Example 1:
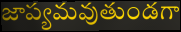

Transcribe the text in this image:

జాప్యమవుతుండగా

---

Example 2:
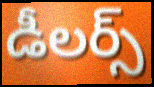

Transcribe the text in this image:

డీలర్స్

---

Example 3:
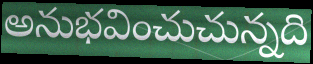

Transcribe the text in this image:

అనుభవించుచున్నది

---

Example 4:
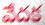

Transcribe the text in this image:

వేదక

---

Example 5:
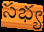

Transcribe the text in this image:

సభ్య